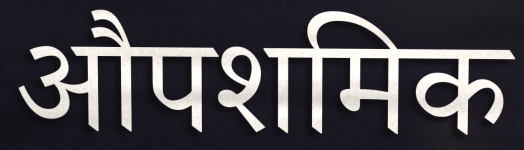
औपशमिक